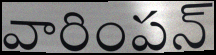
వారింపన్